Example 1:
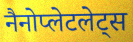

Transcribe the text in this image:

नैनोप्लेटलेट्स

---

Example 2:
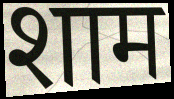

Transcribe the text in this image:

शाम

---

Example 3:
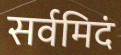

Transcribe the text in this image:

सर्वमिदं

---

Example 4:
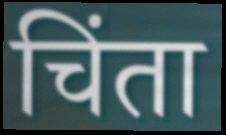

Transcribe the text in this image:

चिंता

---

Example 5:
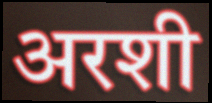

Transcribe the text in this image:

अरशी